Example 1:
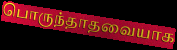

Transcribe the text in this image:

பொருந்தாதவையாக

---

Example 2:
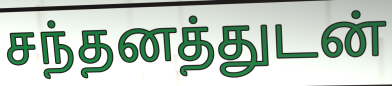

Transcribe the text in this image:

சந்தனத்துடன்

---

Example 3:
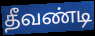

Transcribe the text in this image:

தீவண்டி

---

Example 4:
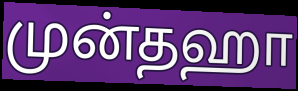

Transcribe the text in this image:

முன்தஹா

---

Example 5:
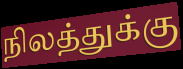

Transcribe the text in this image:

நிலத்துக்கு